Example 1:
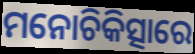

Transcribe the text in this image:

ମନୋଚିକିତ୍ସାରେ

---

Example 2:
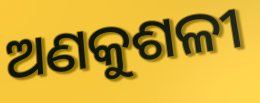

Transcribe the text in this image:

ଅଣକୁଶଳୀ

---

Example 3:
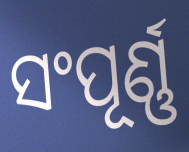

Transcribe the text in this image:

ସଂପୂର୍ଣ୍ଣ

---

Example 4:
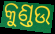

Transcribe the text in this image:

କୁଣ୍ଡଉ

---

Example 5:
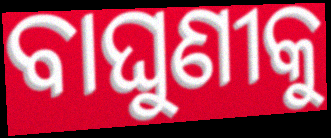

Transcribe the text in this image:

ବାଘୁଣୀକୁ